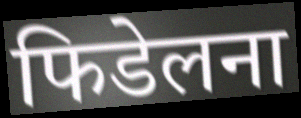
फिडेलना